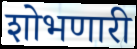
शोभणारी